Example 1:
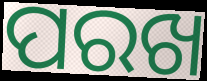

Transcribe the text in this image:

ପରଖ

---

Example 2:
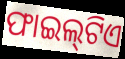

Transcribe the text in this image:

ଫାଇଲ୍‌ଟିଏ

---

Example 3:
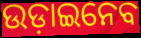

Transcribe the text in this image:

ଉଡ଼ାଇନେବ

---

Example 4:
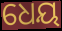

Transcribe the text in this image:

ଧେୟ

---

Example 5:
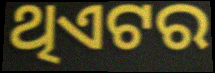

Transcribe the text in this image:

ଥିଏଟର